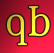
qb